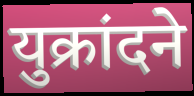
युक्रांदने